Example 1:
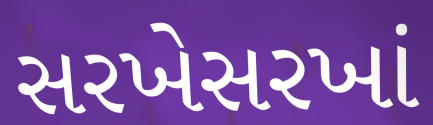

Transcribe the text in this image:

સરખેસરખાં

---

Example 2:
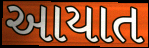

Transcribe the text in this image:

આયાત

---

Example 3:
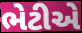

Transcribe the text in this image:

ભેટીએ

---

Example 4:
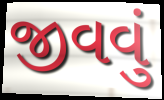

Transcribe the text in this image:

જીવવું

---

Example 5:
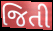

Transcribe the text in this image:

જિતી